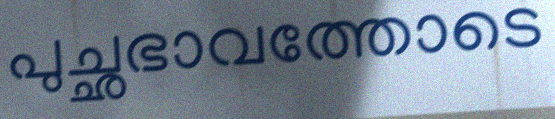
പുച്ഛഭാവത്തോടെ